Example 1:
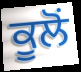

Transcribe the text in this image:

ਕੂਲੋਂ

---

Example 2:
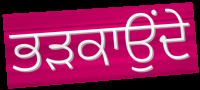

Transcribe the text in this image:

ਭੜਕਾਉਂਦੇ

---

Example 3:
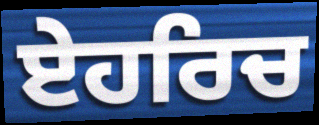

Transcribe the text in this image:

ਏਹਰਿਚ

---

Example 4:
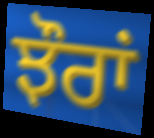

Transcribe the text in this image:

ਝੌਰਾਂ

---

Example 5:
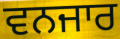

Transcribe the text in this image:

ਵਨਜਾਰ